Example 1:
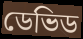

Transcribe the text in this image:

ডেভিড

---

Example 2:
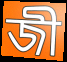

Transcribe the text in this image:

জী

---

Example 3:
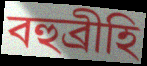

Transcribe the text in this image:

বহুব্ৰীহি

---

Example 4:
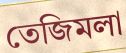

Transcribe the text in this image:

তেজিমলা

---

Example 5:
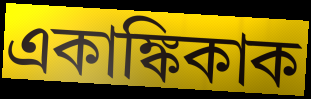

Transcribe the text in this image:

একাঙ্কিকাক